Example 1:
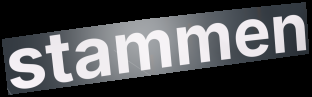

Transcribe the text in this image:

stammen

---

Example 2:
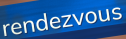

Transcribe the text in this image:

rendezvous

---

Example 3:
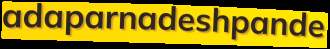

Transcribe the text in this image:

adaparnadeshpande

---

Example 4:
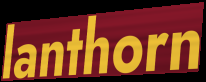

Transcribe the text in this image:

lanthorn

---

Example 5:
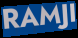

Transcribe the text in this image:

RAMJI